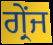
ਗ੍ਰੇਂਜ